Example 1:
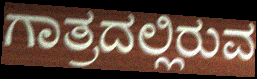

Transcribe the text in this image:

ಗಾತ್ರದಲ್ಲಿರುವ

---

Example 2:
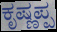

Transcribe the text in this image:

ಕೃಷ್ಣಪ್ಪ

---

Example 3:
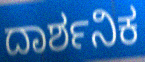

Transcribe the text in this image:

ದಾರ್ಶನಿಕ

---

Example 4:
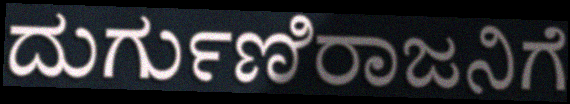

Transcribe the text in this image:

ದುರ್ಗುಣಿರಾಜನಿಗೆ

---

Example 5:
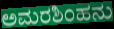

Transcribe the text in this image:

ಅಮರಶಿಂಹನು